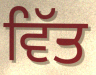
ਵਿੱਤ